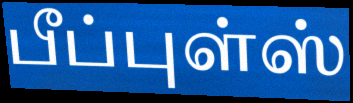
பீப்புள்ஸ்